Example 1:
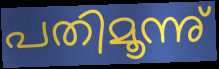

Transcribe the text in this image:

പതിമൂന്നു്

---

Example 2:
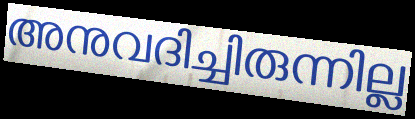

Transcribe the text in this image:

അനുവദിച്ചിരുന്നില്ല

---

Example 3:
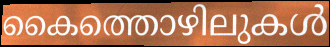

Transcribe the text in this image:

കൈത്തൊഴിലുകൾ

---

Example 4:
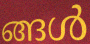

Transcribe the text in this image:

ങ്ങൾ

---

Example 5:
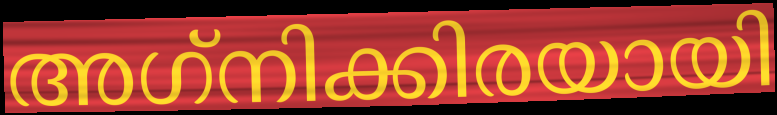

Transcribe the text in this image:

അഗ്‌നിക്കിരയായി